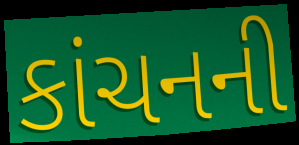
કાંચનની